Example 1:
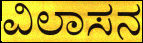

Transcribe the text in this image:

ವಿಲಾಸನ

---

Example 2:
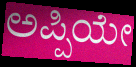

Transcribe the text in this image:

ಅಪ್ಪಿಯೇ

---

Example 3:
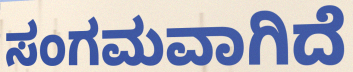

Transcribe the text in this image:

ಸಂಗಮವಾಗಿದೆ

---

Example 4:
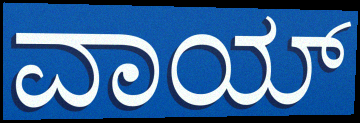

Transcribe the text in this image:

ವಾಯ್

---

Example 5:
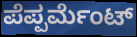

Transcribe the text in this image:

ಪೆಪ್ಪರ್ಮೆಂಟ್